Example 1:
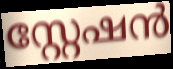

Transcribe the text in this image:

സ്റ്റേഷൻ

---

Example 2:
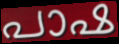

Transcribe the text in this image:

പാഷ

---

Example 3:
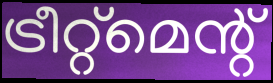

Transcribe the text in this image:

ട്രീറ്റ്മെന്റ്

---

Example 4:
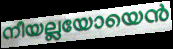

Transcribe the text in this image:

നീയല്ലയോയെൻ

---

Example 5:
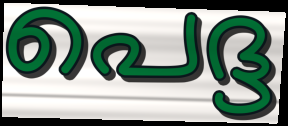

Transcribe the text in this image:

പെദ്ദ